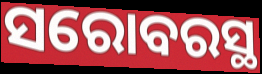
ସରୋବରସ୍ଥ